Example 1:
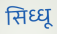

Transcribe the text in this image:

सिध्धू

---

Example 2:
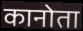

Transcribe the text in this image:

कानोता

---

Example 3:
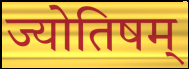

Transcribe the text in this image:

ज्योतिषम्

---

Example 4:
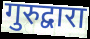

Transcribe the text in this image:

गुरुद्वारा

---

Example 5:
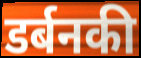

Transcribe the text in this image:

डर्बनकी